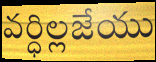
వర్ధిల్లజేయు